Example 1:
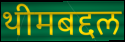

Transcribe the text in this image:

थीमबद्दल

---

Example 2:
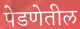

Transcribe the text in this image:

पेडणेतील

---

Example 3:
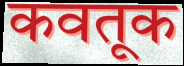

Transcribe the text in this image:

कवतूक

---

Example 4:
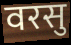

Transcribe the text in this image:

वरसु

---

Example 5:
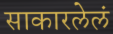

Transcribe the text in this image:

साकारलेलं